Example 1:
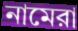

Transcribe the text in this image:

নামেরা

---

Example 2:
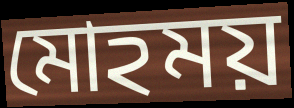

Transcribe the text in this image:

মোহময়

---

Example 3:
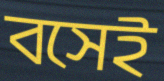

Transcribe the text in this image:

বসেই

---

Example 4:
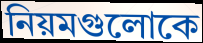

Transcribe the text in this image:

নিয়মগুলোকে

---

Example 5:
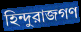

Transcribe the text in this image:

হিন্দুরাজগণ